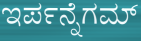
ಇರ್ಪನ್ನೆಗಮ್